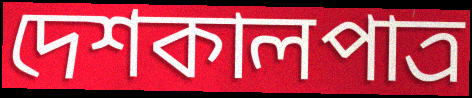
দেশকালপাত্র